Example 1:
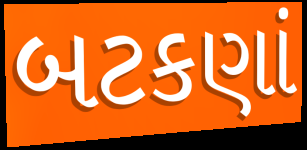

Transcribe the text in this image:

બટકણાં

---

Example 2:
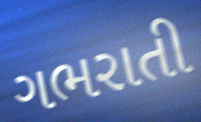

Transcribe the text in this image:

ગભરાતી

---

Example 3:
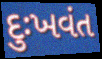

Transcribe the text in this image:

દુઃખવંત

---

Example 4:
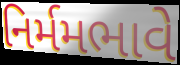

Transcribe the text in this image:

નિર્મમભાવે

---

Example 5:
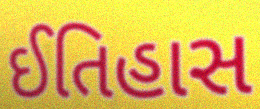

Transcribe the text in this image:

ઈતિહાસ